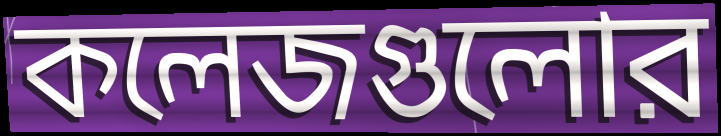
কলেজগুলোর